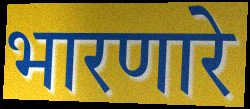
भारणारे